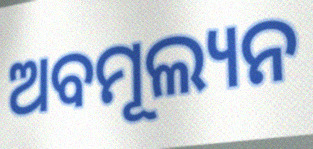
ଅବମୂଲ୍ୟନ